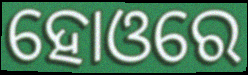
ହୋଓରେ